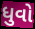
ધુવો